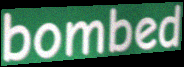
bombed